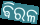
ଵିରଳ